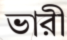
ভারী